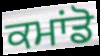
ਕਮਾਂਡੋ